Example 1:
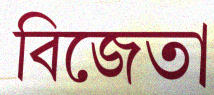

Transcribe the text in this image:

বিজেতা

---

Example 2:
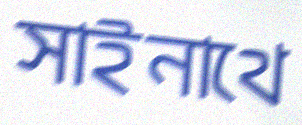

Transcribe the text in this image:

সাইনাথে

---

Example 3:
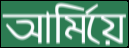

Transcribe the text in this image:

আৰ্মিয়ে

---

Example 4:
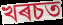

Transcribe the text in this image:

খৰচত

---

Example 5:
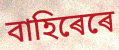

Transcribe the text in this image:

বাহিৰেৰে